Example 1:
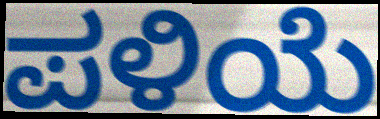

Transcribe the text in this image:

ಪಳಿಯೆ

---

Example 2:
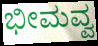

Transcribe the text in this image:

ಭೀಮವ್ವ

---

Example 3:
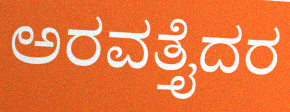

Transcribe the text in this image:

ಅರವತ್ತೈದರ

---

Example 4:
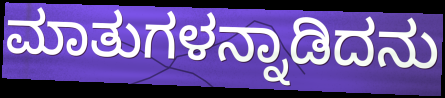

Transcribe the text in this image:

ಮಾತುಗಳನ್ನಾಡಿದನು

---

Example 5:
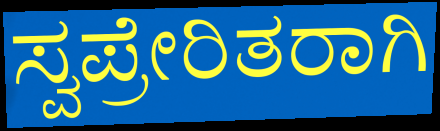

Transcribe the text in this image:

ಸ್ವಪ್ರೇರಿತರಾಗಿ